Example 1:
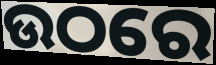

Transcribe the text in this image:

ଉଠରେ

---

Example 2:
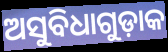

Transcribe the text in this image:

ଅସୁବିଧାଗୁଡ଼ାକ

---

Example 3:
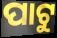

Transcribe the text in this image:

ପାଟୁ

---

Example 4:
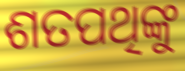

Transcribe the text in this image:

ଶତପଥିଙ୍କୁ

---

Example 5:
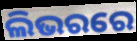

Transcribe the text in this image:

ଲିଭରରେ